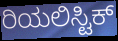
ರಿಯಲಿಸ್ಟಿಕ್